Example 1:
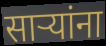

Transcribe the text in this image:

सार्‍यांना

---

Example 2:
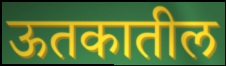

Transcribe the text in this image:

ऊतकातील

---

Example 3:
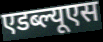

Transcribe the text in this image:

एडब्ल्यूएस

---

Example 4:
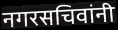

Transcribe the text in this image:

नगरसचिवांनी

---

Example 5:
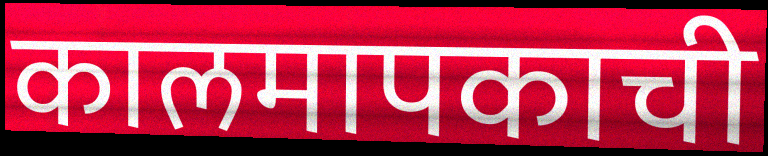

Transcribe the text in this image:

कालमापकाची